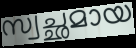
സ്വച്ഛമായ